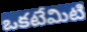
ఒకటేమిటి